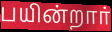
பயின்றார்